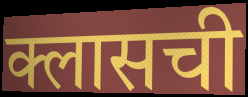
क्‍लासची